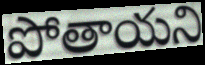
పోతాయని